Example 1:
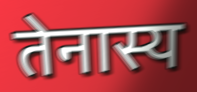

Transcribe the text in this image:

तेनास्य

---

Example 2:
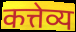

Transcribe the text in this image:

कत्तेव्य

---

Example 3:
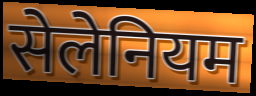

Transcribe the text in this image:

सेलेनियम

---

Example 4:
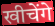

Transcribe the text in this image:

खीचेंगे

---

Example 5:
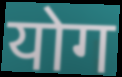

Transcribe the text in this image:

योग